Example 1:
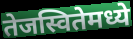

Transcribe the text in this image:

तेजस्वितेमध्ये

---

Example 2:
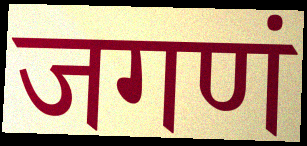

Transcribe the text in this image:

जगणं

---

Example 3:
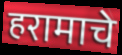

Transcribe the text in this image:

हरामाचे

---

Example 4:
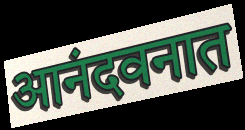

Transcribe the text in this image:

आनंदवनात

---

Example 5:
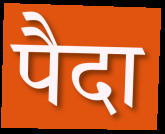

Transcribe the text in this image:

पैदा